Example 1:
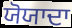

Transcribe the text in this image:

ਯੋਯਾਦਾ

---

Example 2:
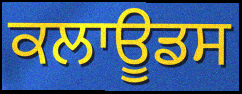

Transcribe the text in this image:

ਕਲਾਊਡਸ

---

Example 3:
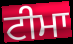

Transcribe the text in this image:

ਟੀਮਾ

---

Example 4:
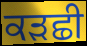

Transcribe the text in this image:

ਕੜਛੀ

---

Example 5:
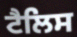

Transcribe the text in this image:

ਟੈਲਿਸ